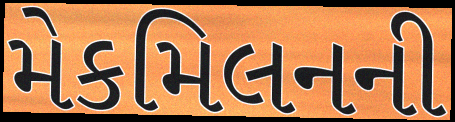
મેકમિલનની